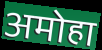
अमोहा